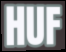
HUF